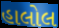
હાલોલ